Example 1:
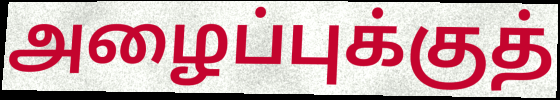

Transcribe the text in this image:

அழைப்புக்குத்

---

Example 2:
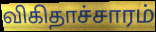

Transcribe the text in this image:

விகிதாச்சாரம்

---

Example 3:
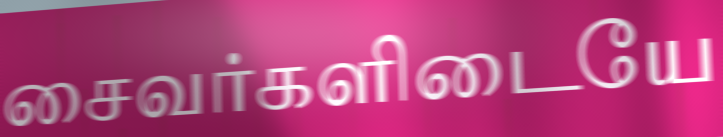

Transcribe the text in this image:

சைவர்களிடையே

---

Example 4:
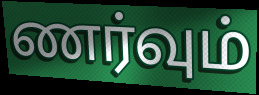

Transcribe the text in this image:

ணர்வும்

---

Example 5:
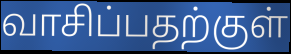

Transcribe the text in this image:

வாசிப்பதற்குள்